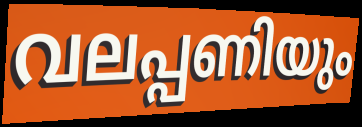
വലപ്പണിയും